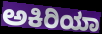
ಅಕಿರಿಯಾ